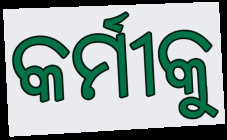
କର୍ମୀକୁ